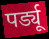
पर्ड्यू